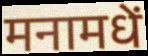
मनामधें